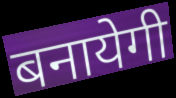
बनायेगी